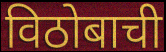
विठोबाची